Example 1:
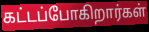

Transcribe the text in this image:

கட்டப்போகிறார்கள்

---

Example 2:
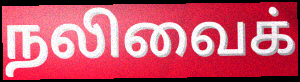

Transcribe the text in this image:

நலிவைக்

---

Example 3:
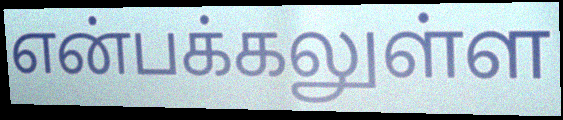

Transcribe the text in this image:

என்பக்கலுள்ள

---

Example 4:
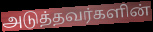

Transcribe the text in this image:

அடுத்தவர்களின்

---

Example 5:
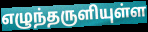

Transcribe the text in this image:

எழுந்தருளியுள்ள